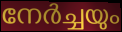
നേർച്ചയും